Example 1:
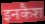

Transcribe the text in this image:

इनकैश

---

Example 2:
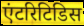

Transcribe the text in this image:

एंटरिटिडिस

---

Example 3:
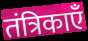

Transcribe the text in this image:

तंत्रिकाएँ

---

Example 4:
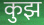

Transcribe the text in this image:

कुझ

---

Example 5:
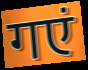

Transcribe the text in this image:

गएं